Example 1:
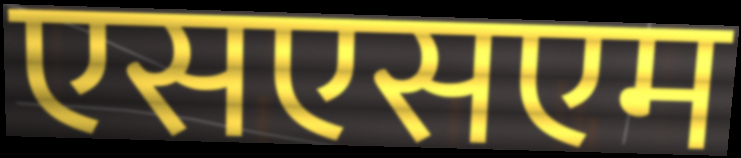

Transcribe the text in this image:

एसएसएम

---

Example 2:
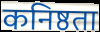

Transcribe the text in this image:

कनिष्ठता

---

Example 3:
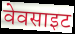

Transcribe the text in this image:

वेवसाइट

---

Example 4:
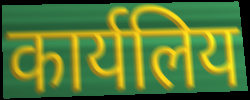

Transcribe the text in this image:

कार्यलिय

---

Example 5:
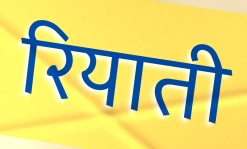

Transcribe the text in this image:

रियाती